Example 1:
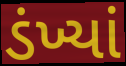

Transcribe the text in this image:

ડંખ્યાં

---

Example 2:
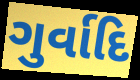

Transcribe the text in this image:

ગુર્વાદિ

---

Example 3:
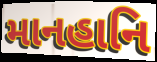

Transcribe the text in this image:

માનહાનિ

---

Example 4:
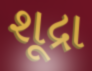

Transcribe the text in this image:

શૂદ્રા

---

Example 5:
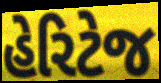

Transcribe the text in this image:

હેરિટેજ